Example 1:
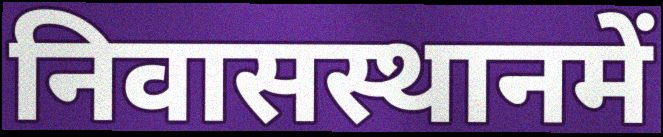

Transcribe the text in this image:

निवासस्थानमें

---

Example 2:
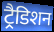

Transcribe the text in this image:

ट्रैडिशन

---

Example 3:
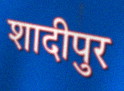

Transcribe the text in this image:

शादीपुर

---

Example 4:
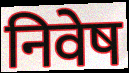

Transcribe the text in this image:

निवेष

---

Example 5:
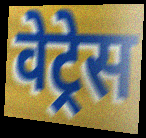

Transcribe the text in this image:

वेट्रेस